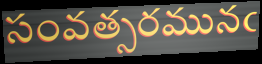
సంవత్సరమునఁ